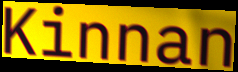
Kinnan